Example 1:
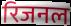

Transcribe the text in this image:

रिजनल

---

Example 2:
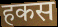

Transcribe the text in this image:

हकस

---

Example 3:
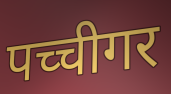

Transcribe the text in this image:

पच्चीगर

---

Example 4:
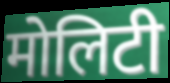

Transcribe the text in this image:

मोलिटी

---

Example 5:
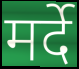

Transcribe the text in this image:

मर्दे